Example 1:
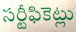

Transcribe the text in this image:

సర్టీఫికెట్లు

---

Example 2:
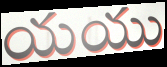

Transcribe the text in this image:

యయు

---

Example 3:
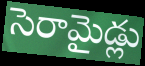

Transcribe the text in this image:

సెరామైడ్లు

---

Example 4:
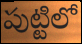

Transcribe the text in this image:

పుట్టిలో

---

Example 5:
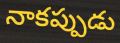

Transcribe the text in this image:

నాకప్పుడు